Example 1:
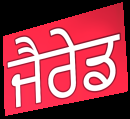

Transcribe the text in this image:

ਜੈਰੇਡ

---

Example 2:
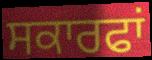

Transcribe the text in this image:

ਸਕਾਰਫਾਂ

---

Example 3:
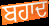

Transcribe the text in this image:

ਬਹਾਦ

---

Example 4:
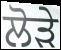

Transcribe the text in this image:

ਲੋੜੇ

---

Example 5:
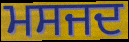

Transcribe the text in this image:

ਮਸਜਦ